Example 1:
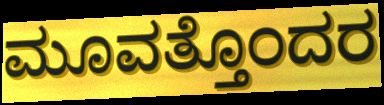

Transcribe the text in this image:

ಮೂವತ್ತೊಂದರ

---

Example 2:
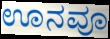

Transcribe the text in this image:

ಊನವೂ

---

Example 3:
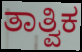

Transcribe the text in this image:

ತಾತ್ವಿಕ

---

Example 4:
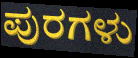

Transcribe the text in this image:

ಪುರಗಳು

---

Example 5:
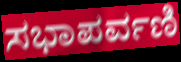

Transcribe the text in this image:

ಸಭಾಪರ್ವಣಿ